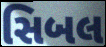
સિબલ